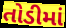
તોડીમાં